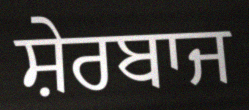
ਸ਼ੇਰਬਾਜ